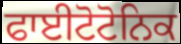
ਫਾਈਟੋਟੋਨਿਕ